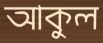
আকুল